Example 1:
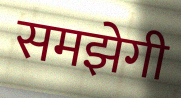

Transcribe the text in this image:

समझेगी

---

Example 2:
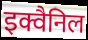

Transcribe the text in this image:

इक्वैनिल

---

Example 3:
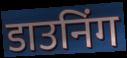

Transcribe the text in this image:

डाउनिंग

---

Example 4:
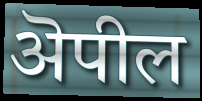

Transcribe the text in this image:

ऄपील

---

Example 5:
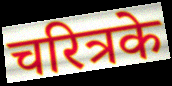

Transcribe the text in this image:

चरित्रके